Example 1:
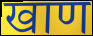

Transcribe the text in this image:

खाण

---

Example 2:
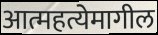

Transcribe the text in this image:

आत्महत्येमागील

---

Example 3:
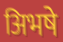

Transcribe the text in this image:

अिभषे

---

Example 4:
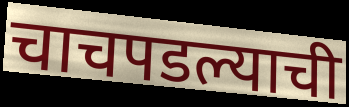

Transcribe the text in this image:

चाचपडल्याची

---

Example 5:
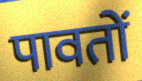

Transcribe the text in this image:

पावतों